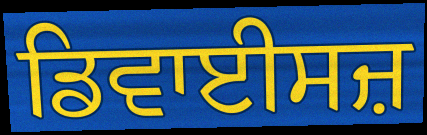
ਡਿਵਾਈਸਜ਼